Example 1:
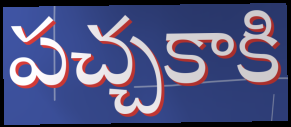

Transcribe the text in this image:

పచ్చకాకి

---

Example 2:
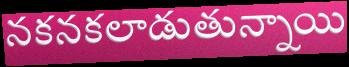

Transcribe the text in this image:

నకనకలాడుతున్నాయి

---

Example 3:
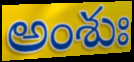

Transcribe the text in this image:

అంశుః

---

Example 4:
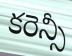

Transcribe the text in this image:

కరెన్సీ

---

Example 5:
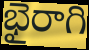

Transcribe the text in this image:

భైరాగి